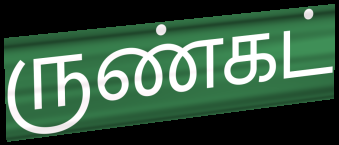
ருண்கட்